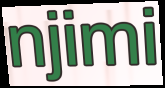
njimi